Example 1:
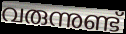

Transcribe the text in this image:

വരുന്നുണ്ട്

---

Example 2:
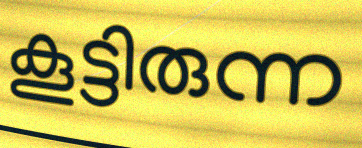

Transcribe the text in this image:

കൂട്ടിരുന്ന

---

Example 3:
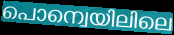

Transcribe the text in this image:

പൊന്വെയിലിലെ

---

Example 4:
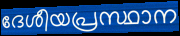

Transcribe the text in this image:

ദേശീയപ്രസ്ഥാന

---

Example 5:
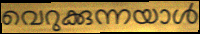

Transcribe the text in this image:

വെറുക്കുന്നയാൾ